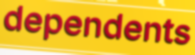
dependents